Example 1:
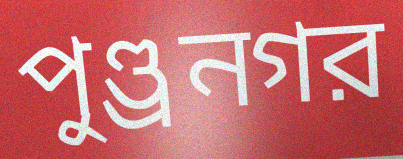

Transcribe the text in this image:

পুণ্ড্রনগর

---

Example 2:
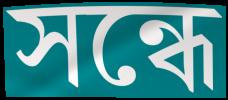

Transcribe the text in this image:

সন্ধে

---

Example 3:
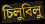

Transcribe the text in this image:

চিলুবিলু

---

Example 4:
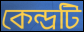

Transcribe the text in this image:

কেন্দ্রটি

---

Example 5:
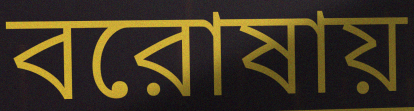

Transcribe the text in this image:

বরোষায়